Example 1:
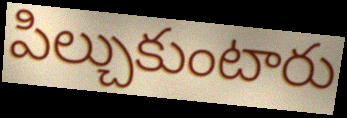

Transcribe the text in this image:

పిల్చుకుంటారు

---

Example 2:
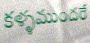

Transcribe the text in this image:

కళ్ళముందరే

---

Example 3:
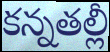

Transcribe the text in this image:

కన్నతల్లీ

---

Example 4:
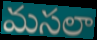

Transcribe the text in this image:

మసలా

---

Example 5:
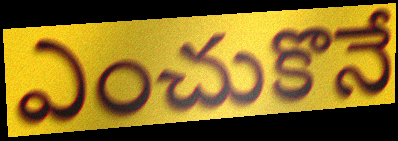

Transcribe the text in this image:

ఎంచుకొనే